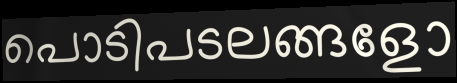
പൊടിപടലങ്ങളോ